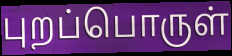
புறப்பொருள்